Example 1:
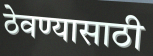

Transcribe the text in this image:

ठेवण्यासाठी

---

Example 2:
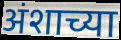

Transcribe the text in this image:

अंशाच्या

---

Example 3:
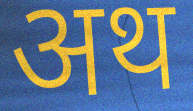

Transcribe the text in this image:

अथ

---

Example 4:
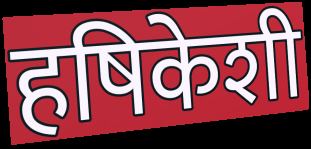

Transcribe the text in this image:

हषिकेशी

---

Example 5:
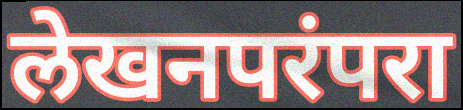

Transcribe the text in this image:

लेखनपरंपरा